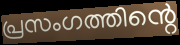
പ്രസംഗത്തിന്റെ